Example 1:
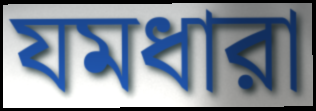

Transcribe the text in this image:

যমধারা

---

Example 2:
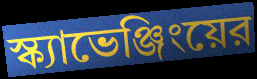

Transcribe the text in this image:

স্ক্যাভেঞ্জিংয়ের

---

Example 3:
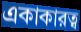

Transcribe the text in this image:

একাকারত্ব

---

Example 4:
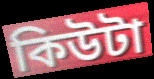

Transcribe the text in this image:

কিউটা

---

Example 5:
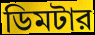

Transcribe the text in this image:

ডিমটার